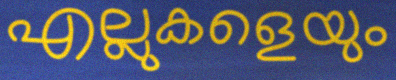
എല്ലുകളെയും